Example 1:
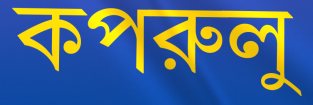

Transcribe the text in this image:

কপরুলু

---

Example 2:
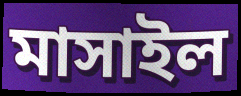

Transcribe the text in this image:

মাসাইল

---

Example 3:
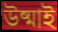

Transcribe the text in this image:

উষ্মাই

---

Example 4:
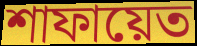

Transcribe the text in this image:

শাফায়েত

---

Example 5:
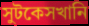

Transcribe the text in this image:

সুটকেসখানি